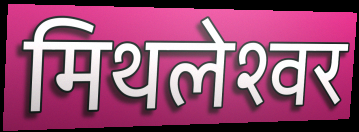
मिथलेश्वर